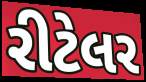
રીટેલર